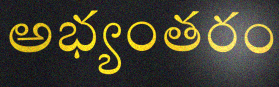
అభ్యంతరం